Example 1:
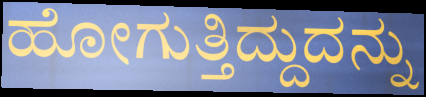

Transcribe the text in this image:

ಹೋಗುತ್ತಿದ್ದುದನ್ನು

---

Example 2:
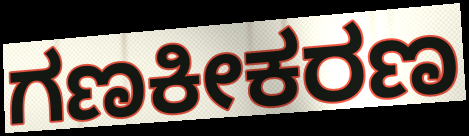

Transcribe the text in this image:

ಗಣಕೀಕರಣ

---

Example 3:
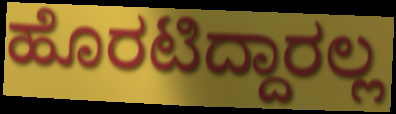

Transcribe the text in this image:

ಹೊರಟಿದ್ದಾರಲ್ಲ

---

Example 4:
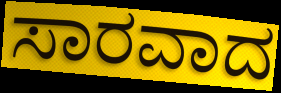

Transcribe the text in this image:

ಸಾರವಾದ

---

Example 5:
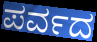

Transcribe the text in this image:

ಪರ್ವದ